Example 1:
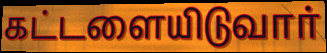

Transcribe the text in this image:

கட்டளையிடுவார்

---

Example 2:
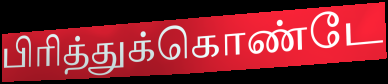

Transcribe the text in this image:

பிரித்துக்கொண்டே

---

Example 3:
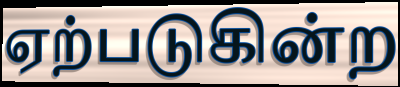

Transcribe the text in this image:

ஏற்படுகின்ற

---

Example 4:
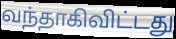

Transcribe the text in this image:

வந்தாகிவிட்டது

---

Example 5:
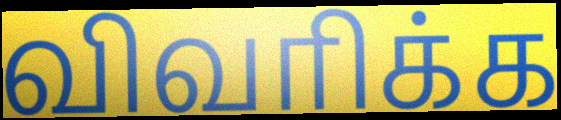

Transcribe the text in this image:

விவரிக்க